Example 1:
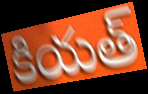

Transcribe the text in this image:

కియత్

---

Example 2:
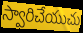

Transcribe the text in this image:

స్వారిచేయుచు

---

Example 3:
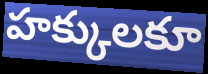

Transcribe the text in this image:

హక్కులకూ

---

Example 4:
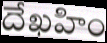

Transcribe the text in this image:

దేఖహిం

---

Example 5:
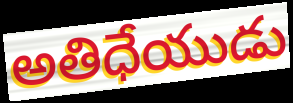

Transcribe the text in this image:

అతిధేయుడు